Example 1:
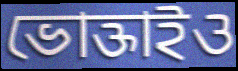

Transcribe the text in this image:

ভোক্তাইও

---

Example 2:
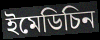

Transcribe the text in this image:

ইমেডিচিন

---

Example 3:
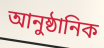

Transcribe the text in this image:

আনুষ্ঠানিক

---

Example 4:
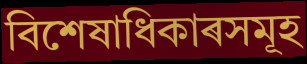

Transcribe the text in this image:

বিশেষাধিকাৰসমূহ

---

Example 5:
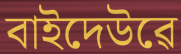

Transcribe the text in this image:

বাইদেউৱে